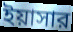
ইয়াসার